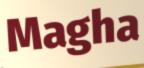
Magha